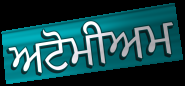
ਅਟੋਮੀਅਮ